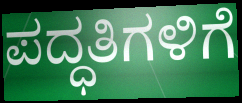
ಪದ್ಧತಿಗಳಿಗೆ